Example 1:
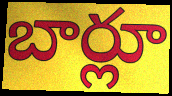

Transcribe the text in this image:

బార్లూ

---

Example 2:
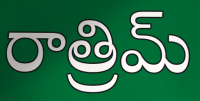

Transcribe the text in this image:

రాత్రిమ్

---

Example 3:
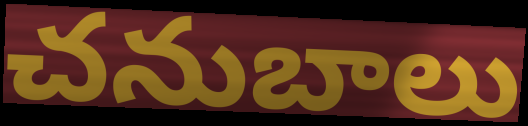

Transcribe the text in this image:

చనుబాలు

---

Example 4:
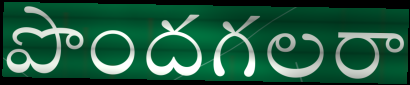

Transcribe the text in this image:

పొందగలరా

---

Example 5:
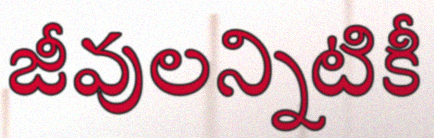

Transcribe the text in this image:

జీవులన్నిటికీ